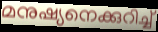
മനുഷ്യനെക്കുറിച്ച്